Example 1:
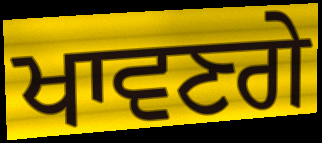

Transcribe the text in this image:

ਖਾਵਣਗੇ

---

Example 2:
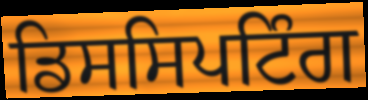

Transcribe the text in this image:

ਡਿਸਸਿਪਟਿੰਗ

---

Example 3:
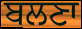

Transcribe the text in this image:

ਬਲਣਾ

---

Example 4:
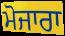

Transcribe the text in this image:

ਮੋਜਾਰਾ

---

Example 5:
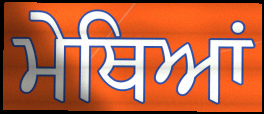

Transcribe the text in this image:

ਮੇਥਿਆਂ